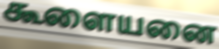
கூளையனை